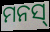
ମନସ୍